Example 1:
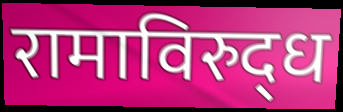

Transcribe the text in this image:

रामाविरुद्ध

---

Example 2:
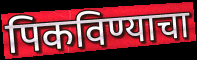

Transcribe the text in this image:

पिकविण्याचा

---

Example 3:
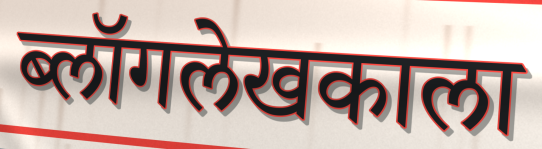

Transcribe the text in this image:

ब्लॉगलेखकाला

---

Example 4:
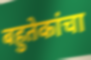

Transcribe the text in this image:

बहुतेकांचा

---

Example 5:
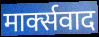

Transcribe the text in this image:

मार्क्‍सवाद